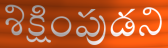
శిక్షింపుడని